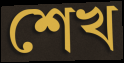
শেখ